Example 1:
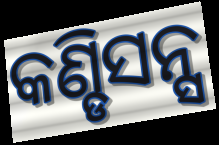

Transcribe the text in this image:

କଣ୍ଡିସନ୍ସ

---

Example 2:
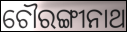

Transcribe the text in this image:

ଚୌରଙ୍ଗୀନାଥ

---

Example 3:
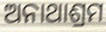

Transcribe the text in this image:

ଅନାଥାଶ୍ରମ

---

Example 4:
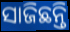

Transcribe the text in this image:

ସାଜିଛନ୍ତି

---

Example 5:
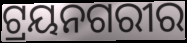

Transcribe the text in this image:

ଟ୍ରୟନଗରୀର